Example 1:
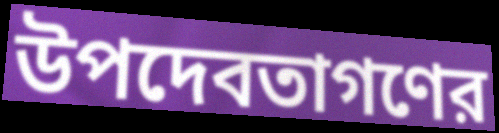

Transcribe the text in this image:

উপদেবতাগণের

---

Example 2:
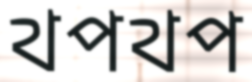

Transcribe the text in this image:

থপথপ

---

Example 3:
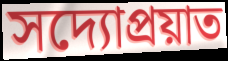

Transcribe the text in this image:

সদ্যোপ্রয়াত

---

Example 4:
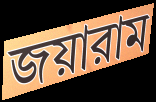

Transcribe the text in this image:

জয়ারাম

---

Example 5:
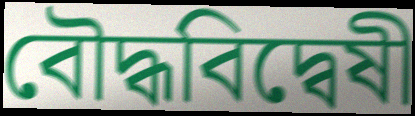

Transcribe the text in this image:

বৌদ্ধবিদ্বেষী